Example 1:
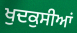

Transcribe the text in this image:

ਖੁਦਕੁਸੀਆਂ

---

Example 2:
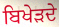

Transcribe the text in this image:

ਬਿਖੇੜਦੇ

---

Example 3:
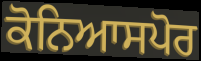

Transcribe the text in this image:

ਕੋਨਿਆਸਪੋਰ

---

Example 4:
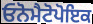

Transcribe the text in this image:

ਓਨੋਮੈਟੋਪੋਇਕ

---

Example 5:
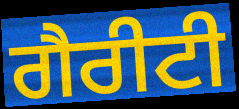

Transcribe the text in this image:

ਗੈਰੀਟੀ